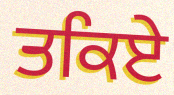
ਤਕਿਏ